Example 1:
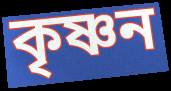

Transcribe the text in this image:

কৃষ্ণন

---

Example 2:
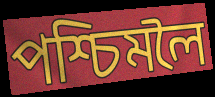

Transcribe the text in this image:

পশ্চিমলৈ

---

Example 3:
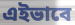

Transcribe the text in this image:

এইভাবে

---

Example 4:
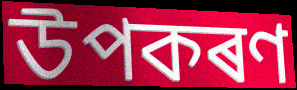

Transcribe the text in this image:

উপকৰণ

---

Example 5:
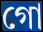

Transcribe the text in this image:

গো